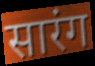
सारंग